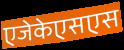
एजेकेएसएस